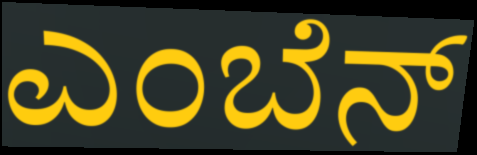
ಎಂಬೆನ್